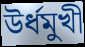
উর্ধমুখী